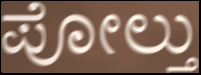
ಪೋಲ್ತು